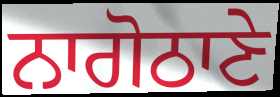
ਨਾਗੋਠਾਣੇ